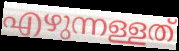
എഴുന്നള്ളത്